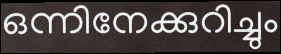
ഒന്നിനേക്കുറിച്ചും